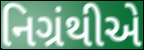
નિગ્રંથીએ